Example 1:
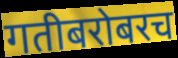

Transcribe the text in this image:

गतीबरोबरच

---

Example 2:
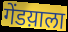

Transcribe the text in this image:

गेंडय़ाला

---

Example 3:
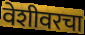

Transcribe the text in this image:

वेशीवरचा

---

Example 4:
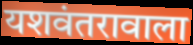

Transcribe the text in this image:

यशवंतरावाला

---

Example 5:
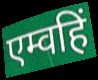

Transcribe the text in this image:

एम्वहिं